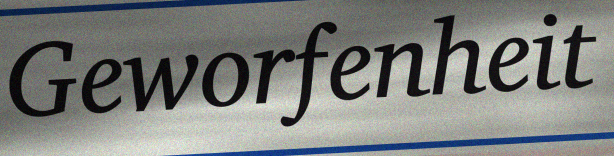
Geworfenheit